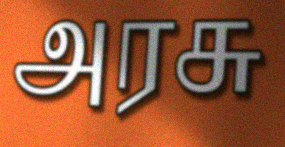
அரசு